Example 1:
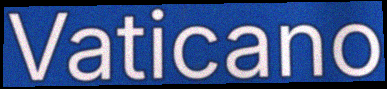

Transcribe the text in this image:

Vaticano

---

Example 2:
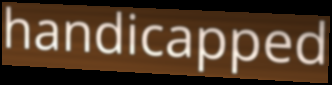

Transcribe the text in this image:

handicapped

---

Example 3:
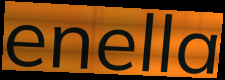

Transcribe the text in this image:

enella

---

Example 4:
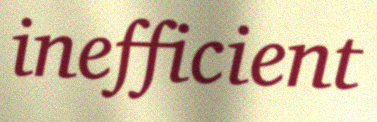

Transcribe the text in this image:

inefficient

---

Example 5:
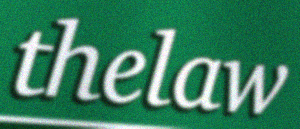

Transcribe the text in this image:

thelaw